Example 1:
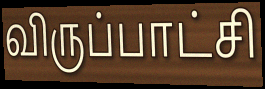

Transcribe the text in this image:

விருப்பாட்சி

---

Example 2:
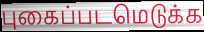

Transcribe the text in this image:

புகைப்படமெடுக்க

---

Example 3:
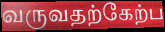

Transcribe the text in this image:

வருவதற்கேற்ப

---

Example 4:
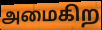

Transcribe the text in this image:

அமைகிற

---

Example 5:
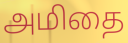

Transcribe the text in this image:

அமிதை